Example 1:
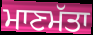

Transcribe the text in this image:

ਮਾਣਮੱਤਾ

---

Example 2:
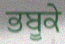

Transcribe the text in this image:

ਭਬੂਕੇ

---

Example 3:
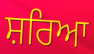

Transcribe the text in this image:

ਸ਼ਰਿਆ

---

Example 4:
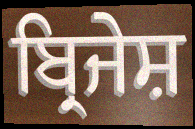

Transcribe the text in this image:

ਬ੍ਰਿਜੇਸ਼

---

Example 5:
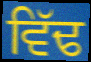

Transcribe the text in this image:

ਵਿੱਢ